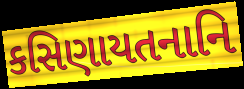
કસિણાયતનાનિ